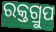
ରକ୍ତଗ୍ରୁପ